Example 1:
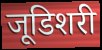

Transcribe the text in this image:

जूडिशरी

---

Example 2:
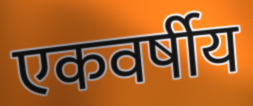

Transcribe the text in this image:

एकवर्षीय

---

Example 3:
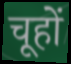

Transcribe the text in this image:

चूहों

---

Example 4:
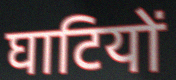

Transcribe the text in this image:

घाटियों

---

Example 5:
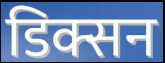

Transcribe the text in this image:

डिक्सन